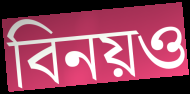
বিনয়ও